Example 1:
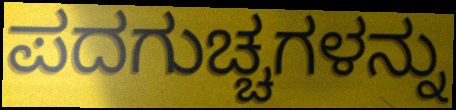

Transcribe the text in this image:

ಪದಗುಚ್ಚಗಳನ್ನು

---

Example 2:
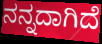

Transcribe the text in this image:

ನನ್ನದಾಗಿದೆ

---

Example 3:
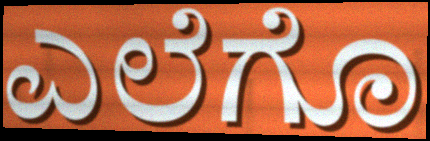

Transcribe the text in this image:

ಎಲೆಗೊ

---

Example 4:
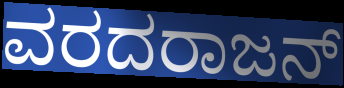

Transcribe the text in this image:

ವರದರಾಜನ್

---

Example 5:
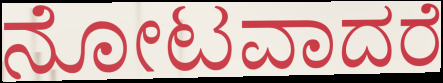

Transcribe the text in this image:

ನೋಟವಾದರೆ